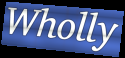
Wholly